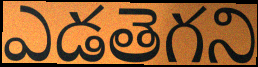
ఎడతెగని